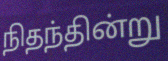
நிதந்தின்று